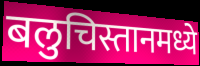
बलुचिस्तानमध्ये